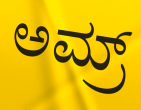
ಅಮ್ರ್